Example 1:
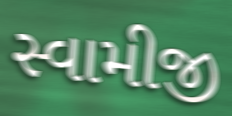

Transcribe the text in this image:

સ્વામીજી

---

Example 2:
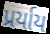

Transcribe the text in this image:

પ્રર્યાય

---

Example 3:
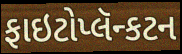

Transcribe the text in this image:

ફાઇટોપ્લૅન્કટન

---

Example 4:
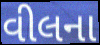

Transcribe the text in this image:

વીલના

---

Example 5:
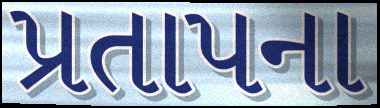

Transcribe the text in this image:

પ્રતાપના